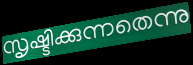
സൃഷ്ടിക്കുന്നതെന്നു